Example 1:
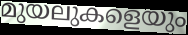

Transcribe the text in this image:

മുയലുകളെയും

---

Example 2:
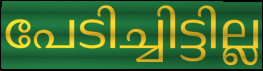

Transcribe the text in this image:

പേടിച്ചിട്ടില്ല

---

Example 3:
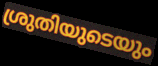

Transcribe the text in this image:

ശ്രുതിയുടെയും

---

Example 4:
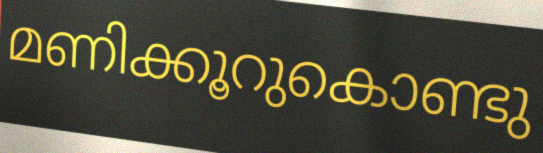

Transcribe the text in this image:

മണിക്കൂറുകൊണ്ടു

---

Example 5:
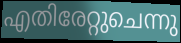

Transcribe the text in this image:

എതിരേറ്റുചെന്നു